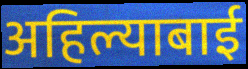
अहिल्याबाई